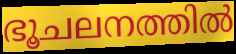
ഭൂചലനത്തിൽ